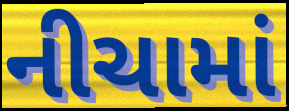
નીચામાં